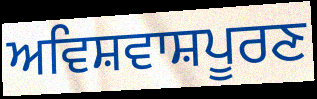
ਅਵਿਸ਼ਵਾਸ਼ਪੂਰਣ